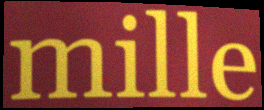
mille